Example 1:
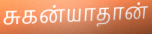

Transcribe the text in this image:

சுகன்யாதான்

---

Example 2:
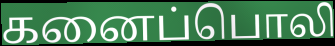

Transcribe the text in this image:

கனைப்பொலி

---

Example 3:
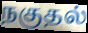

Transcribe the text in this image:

நகுதல்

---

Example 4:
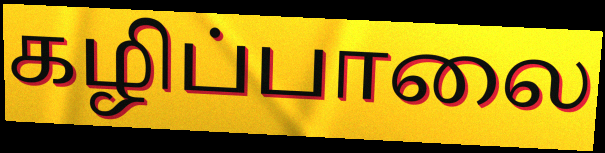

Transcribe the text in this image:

கழிப்பாலை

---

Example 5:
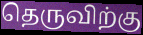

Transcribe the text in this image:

தெருவிற்கு